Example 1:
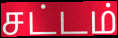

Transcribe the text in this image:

சட்டம்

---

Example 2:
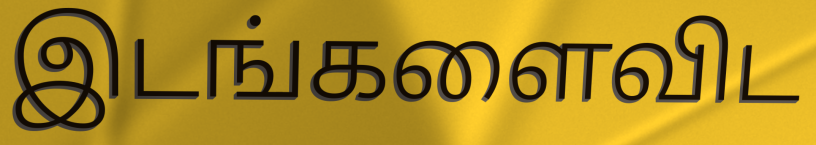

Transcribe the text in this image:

இடங்களைவிட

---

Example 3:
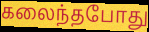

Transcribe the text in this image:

கலைந்தபோது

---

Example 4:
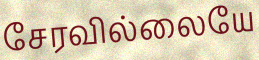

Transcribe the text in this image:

சேரவில்லையே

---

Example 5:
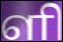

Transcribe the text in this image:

ளி